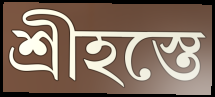
শ্রীহস্তে